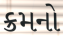
ક્રમનો